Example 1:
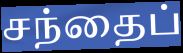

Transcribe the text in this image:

சந்தைப்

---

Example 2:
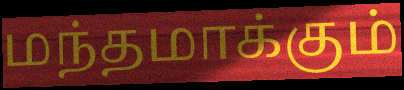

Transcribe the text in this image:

மந்தமாக்கும்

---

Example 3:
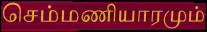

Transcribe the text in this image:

செம்மணியாரமும்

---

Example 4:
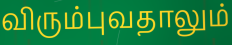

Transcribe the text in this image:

விரும்புவதாலும்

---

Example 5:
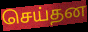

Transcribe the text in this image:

செய்தன